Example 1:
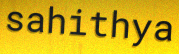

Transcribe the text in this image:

sahithya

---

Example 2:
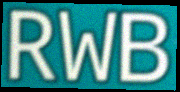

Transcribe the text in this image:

RWB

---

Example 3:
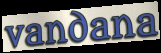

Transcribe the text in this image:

vandana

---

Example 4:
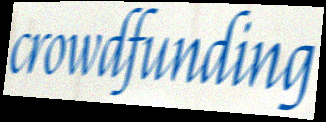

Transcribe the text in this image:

crowdfunding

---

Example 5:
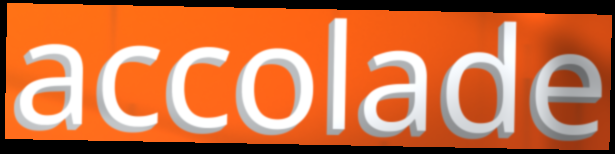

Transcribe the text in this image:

accolade